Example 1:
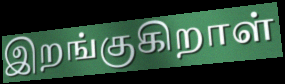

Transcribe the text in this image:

இறங்குகிறாள்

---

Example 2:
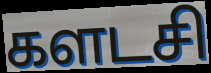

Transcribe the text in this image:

களடசி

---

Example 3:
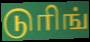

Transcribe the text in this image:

டுரிங்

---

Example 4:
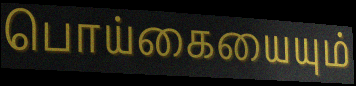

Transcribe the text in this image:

பொய்கையையும்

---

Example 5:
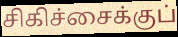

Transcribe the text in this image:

சிகிச்சைக்குப்